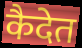
कैदेत